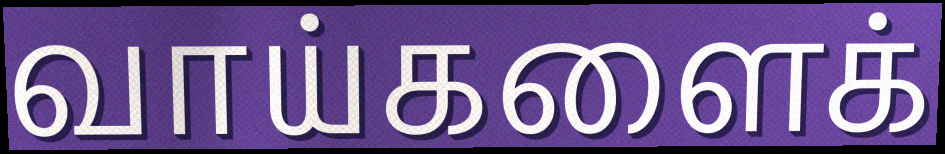
வாய்களைக்